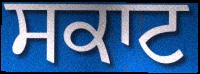
ਸਕਾਟ